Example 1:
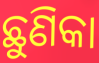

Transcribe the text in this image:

ଛୁଣିକା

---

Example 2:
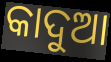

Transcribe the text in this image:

କାଦୁଆ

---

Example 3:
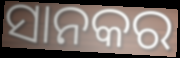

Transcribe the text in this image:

ସାନକର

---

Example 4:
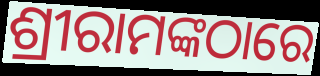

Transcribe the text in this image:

ଶ୍ରୀରାମଙ୍କଠାରେ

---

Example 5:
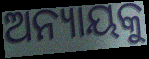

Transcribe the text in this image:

ଅନ୍ୟାୟକୁ